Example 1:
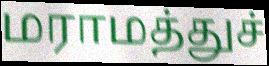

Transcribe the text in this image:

மராமத்துச்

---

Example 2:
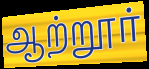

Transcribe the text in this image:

ஆற்றூர்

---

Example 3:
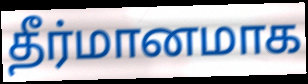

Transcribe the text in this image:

தீர்மானமாக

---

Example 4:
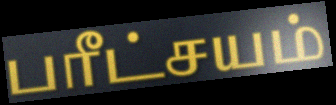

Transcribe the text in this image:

பரீட்சயம்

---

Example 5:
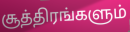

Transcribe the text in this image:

சூத்திரங்களும்